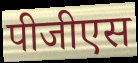
पीजीएस